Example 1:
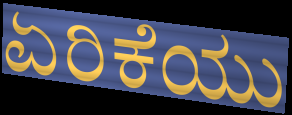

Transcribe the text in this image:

ಏರಿಕೆಯು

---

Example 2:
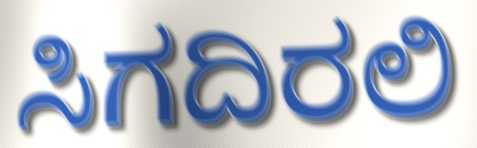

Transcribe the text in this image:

ಸಿಗದಿರಲಿ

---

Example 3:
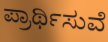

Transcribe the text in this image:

ಪ್ರಾರ್ಥಿಸುವೆ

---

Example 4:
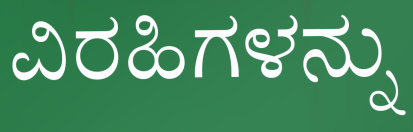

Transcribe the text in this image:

ವಿರಹಿಗಳನ್ನು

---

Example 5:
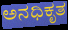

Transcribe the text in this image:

ಅನಧಿಕೃತ